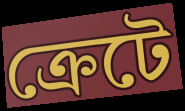
ক্রেটে